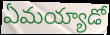
ఏమయ్యాడో